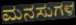
ಮನಸುಗಳ